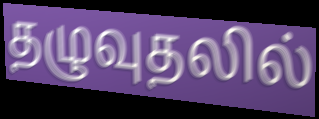
தழுவுதலில்